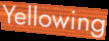
Yellowing